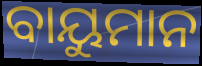
ବାୟୁମାନ